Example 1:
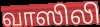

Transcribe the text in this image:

வாஸிலி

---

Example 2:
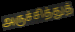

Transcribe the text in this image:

அருச்சித்துத்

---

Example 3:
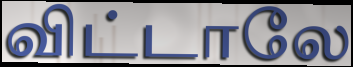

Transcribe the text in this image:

விட்டாலே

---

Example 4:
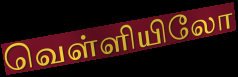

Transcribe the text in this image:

வெள்ளியிலோ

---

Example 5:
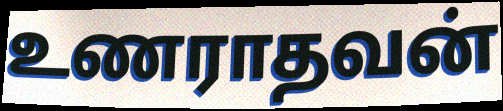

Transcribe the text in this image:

உணராதவன்